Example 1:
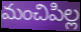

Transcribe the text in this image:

మంచిపిల్ల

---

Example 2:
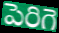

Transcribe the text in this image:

పెరిగె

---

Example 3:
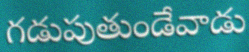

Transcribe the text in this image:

గడుపుతుండేవాడు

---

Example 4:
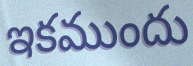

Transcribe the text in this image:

ఇకముందు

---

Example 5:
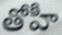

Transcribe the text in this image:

తోహీ